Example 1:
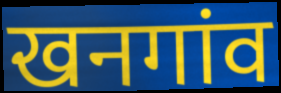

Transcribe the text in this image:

खनगांव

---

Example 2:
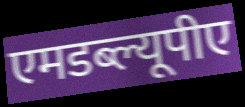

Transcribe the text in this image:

एमडब्ल्यूपीए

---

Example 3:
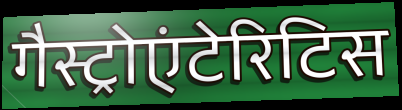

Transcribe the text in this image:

गैस्ट्रोएंटेरिटिस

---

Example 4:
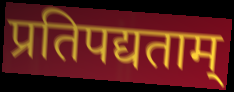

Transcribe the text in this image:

प्रतिपद्यताम्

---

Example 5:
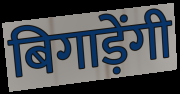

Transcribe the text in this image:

बिगाड़ेंगी